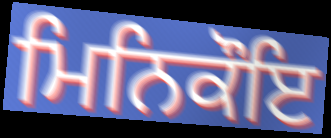
ਮਿਨਿਕੌਇ